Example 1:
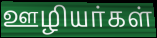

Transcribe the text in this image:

ஊழியர்கள்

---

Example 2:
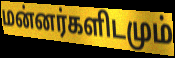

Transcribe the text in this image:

மன்னர்களிடமும்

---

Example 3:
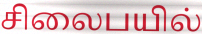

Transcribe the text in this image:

சிலைபயில்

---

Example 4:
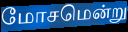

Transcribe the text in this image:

மோசமென்று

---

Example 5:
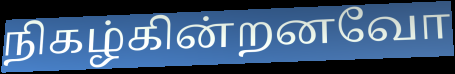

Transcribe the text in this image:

நிகழ்கின்றனவோ